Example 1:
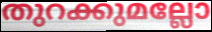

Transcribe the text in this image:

തുറക്കുമല്ലോ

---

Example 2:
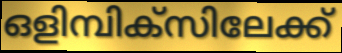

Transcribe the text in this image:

ഒളിമ്പിക്സിലേക്ക്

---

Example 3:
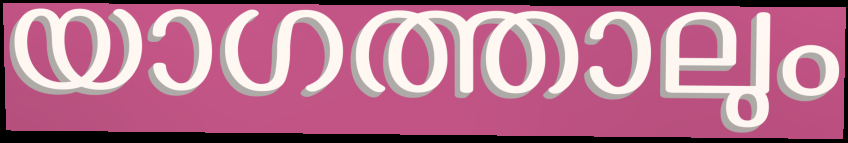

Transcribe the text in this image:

യാഗത്താലും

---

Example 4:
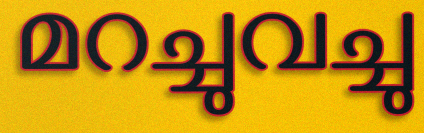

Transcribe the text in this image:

മറച്ചുവച്ചു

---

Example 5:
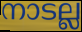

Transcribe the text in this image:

നാടല്ല